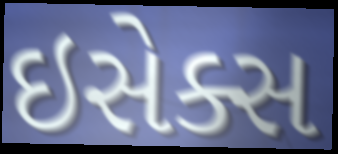
ઇસેક્સ